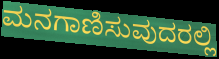
ಮನಗಾಣಿಸುವುದರಲ್ಲಿ